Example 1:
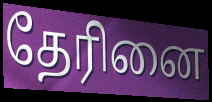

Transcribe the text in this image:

தேரினை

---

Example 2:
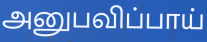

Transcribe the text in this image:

அனுபவிப்பாய்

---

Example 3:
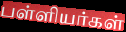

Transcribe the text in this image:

பள்ளியர்கள்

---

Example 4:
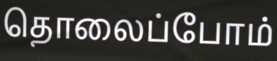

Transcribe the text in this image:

தொலைப்போம்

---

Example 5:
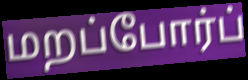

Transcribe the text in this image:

மறப்போர்ப்